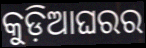
କୁଡ଼ିଆଘରର